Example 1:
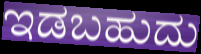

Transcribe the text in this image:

ಇಡಬಹುದು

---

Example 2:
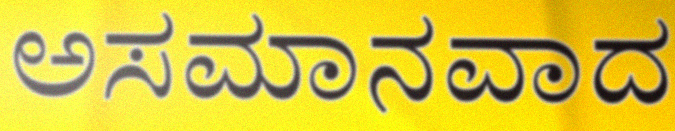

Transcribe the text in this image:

ಅಸಮಾನವಾದ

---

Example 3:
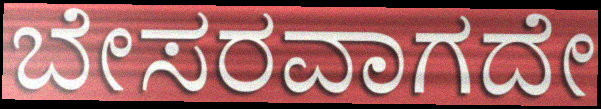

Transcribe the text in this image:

ಬೇಸರವಾಗದೇ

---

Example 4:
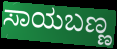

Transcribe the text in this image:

ಸಾಯಬಣ್ಣ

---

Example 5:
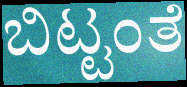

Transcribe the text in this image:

ಬಿಟ್ಟಂತೆ